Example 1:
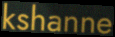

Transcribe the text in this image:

kshanne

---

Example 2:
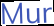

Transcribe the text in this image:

Mur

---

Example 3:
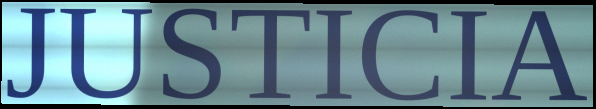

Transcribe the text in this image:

JUSTICIA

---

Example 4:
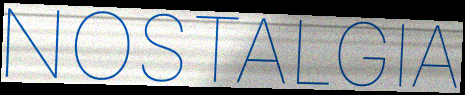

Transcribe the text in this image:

NOSTALGIA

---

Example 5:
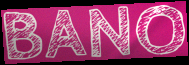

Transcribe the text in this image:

BANO